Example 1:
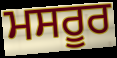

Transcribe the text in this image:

ਮਸਰੂਰ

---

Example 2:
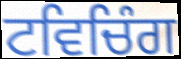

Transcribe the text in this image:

ਟਵਿਚਿੰਗ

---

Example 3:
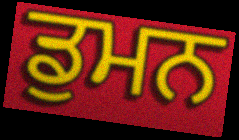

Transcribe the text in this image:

ਡੁਮਨ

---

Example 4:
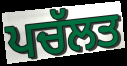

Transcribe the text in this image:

ਪਚੱਲਤ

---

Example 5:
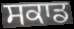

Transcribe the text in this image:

ਸਕਾਡ